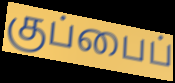
குப்பைப்